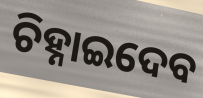
ଚିହ୍ନାଇଦେବ